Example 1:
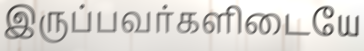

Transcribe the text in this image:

இருப்பவர்களிடையே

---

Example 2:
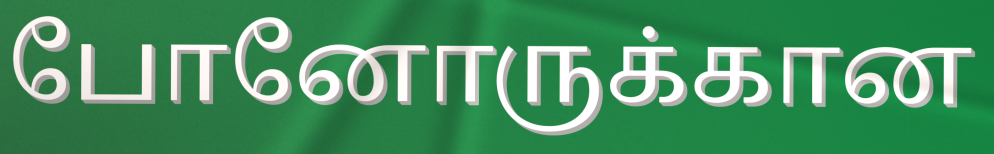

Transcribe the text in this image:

போனோருக்கான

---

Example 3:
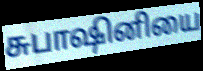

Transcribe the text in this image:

சுபாஷினியை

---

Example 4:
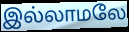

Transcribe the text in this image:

இல்லாமலே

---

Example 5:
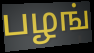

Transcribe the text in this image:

பழங்